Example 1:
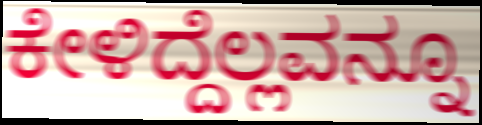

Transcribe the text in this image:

ಕೇಳಿದ್ದೆಲ್ಲವನ್ನೂ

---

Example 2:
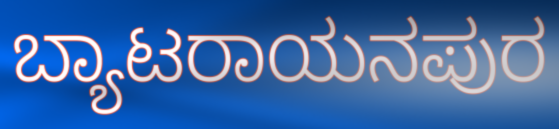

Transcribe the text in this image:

ಬ್ಯಾಟರಾಯನಪುರ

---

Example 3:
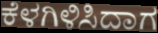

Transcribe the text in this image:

ಕೆಳಗಿಳಿಸಿದಾಗ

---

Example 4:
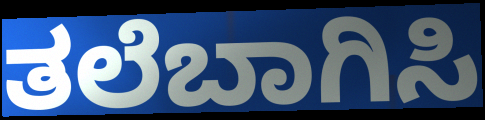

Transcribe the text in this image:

ತಲೆಬಾಗಿಸಿ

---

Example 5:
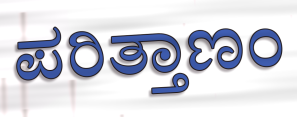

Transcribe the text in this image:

ಪರಿತ್ತಾಣಂ